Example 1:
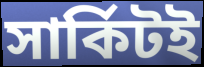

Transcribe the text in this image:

সার্কিটই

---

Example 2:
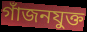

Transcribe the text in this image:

গাঁজনযুক্ত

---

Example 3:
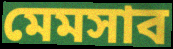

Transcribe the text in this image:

মেমসাব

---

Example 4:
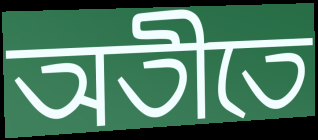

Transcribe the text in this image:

অতীতে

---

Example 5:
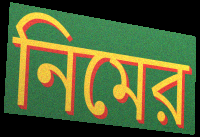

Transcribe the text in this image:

নিমের